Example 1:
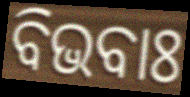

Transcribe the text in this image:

ବିଭବାଃ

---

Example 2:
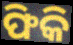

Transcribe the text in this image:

ଫିକି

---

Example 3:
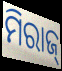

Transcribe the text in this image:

ମିରାଜ୍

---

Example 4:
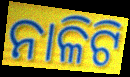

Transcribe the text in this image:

ନାଳିଟି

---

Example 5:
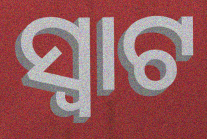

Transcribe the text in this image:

ସ୍ୱାଟ